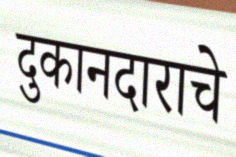
दुकानदाराचे